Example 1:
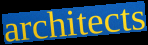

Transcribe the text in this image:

architects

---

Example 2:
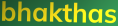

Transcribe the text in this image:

bhakthas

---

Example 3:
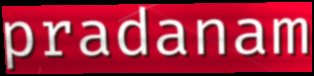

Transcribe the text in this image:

pradanam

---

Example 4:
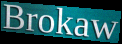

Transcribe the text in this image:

Brokaw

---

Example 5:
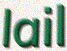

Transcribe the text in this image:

lail